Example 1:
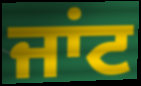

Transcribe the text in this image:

ਜਾਂਟ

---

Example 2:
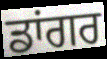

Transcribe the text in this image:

ਡਾਂਗਰ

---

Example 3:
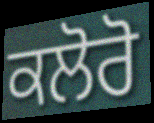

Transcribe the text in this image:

ਕਲੋਰੋ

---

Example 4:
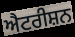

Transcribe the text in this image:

ਐਟਰੀਸ਼ਨ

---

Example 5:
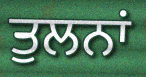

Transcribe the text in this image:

ਤੁਲਨਾਂ